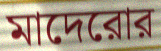
মাদেরোর